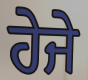
ਹੇਜੇ